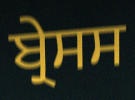
ਬ੍ਰੇਸਸ